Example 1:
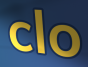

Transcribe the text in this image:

clo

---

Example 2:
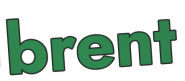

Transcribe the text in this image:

brent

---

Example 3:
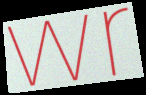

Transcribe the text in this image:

wr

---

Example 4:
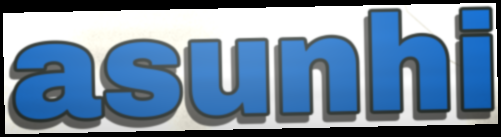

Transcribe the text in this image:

asunhi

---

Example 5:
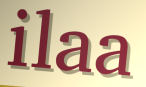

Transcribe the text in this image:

ilaa